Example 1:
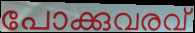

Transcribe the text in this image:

പോക്കുവരവ്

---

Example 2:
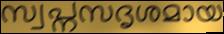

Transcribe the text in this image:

സ്വപ്നസദൃശമായ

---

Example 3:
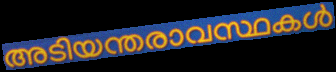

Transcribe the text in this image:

അടിയന്തരാവസ്ഥകൾ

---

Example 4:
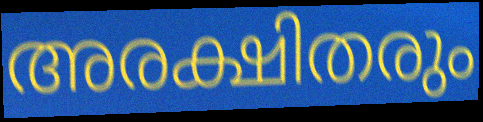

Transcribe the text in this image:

അരക്ഷിതരും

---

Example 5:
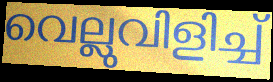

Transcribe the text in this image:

വെല്ലുവിളിച്ച്